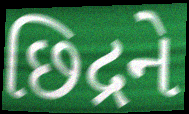
છિદ્રને